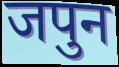
जपुन